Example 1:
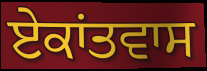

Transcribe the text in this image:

ਏਕਾਂਤਵਾਸ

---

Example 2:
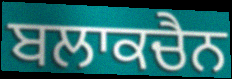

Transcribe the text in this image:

ਬਲਾਕਚੈਨ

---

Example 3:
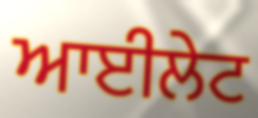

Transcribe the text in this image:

ਆਈਲੇਟ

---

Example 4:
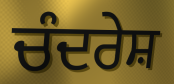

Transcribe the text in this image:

ਚੰਦਰੇਸ਼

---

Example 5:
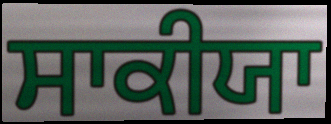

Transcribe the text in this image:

ਸਾਕੀਯਾ